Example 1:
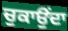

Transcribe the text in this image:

ਚੁਕਾਉਂਦਾ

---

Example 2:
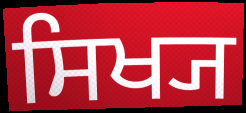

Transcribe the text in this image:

ਸਿਖ੍ਯ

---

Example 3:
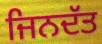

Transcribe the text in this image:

ਜਿਨਦੱਤ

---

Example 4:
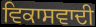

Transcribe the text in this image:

ਵਿਕਾਸਵਾਦੀ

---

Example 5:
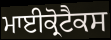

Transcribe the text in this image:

ਮਾਈਕ੍ਰੋਟੈਕਸ